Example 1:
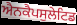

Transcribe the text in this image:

ਐਨਕੈਪਸੁਲੇਟਿਡ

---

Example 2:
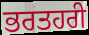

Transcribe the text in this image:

ਭਰਤਹਰੀ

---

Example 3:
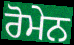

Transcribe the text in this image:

ਰੋਮੇਨ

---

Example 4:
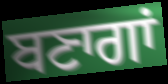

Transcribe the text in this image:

ਬਣਾਗਾਂ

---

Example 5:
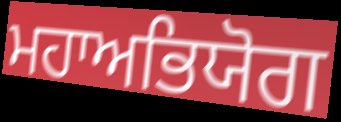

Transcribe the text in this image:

ਮਹਾਅਭਿਯੋਗ